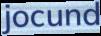
jocund